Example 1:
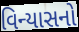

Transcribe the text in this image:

વિન્યાસનો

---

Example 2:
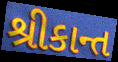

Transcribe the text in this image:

શ્રીકાન્ત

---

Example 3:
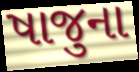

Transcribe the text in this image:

ષાજુના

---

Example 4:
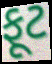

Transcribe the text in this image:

ફૂટ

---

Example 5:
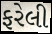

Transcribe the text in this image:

ફરેલી